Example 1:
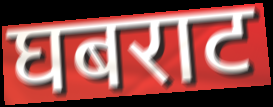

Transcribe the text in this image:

घबराट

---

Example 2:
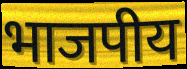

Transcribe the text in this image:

भाजपीय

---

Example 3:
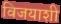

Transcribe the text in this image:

विजयाशी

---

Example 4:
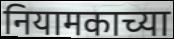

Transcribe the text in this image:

नियामकाच्या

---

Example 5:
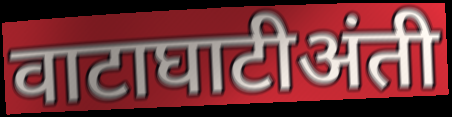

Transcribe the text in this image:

वाटाघाटीअंती